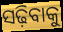
ସଢ଼ିବାକୁ